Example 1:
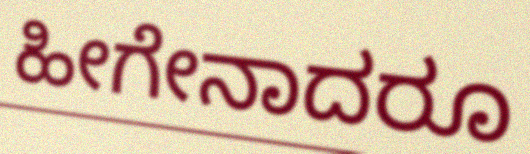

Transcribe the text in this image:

ಹೀಗೇನಾದರೂ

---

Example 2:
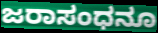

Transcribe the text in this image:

ಜರಾಸಂಧನೂ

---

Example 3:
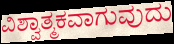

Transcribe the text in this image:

ವಿಶ್ವಾತ್ಮಕವಾಗುವುದು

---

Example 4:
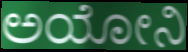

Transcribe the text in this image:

ಅಯೋನಿ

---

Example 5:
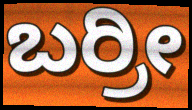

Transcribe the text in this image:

ಬರ್ರೀ